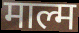
माल्म